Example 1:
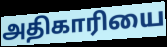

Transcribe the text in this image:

அதிகாரியை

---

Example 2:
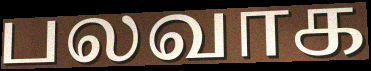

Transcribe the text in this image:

பலவாக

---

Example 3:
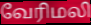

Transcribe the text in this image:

வேரிமலி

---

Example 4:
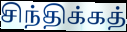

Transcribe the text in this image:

சிந்திக்கத்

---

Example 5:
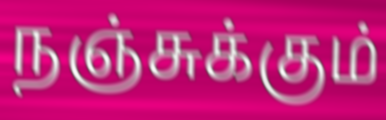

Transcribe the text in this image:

நஞ்சுக்கும்